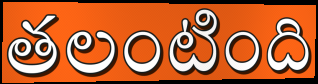
తలంటింది